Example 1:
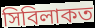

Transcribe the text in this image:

সিবিলাকত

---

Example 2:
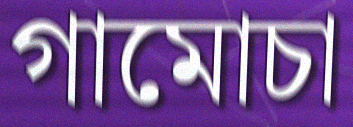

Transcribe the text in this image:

গামোচা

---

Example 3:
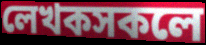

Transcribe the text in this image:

লেখকসকলে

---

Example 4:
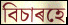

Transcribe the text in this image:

বিচাৰহে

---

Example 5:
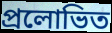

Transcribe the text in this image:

প্ৰলোভিত